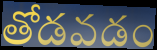
తోడవడం